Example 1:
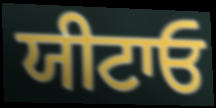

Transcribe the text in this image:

ਯੀਟਾਓ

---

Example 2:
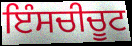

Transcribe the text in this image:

ਇੰਸਚੀਚੂਟ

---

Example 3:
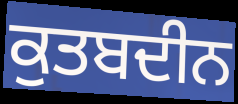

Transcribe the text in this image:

ਕੁਤਬਦੀਨ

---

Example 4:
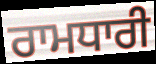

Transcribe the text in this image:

ਰਾਮਧਾਰੀ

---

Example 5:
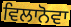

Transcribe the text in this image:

ਵਿਲਾਨੋਵਾ